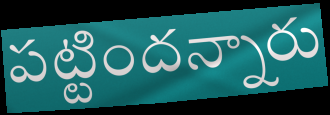
పట్టిందన్నారు